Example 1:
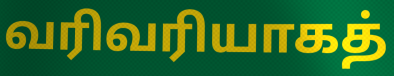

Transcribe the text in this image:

வரிவரியாகத்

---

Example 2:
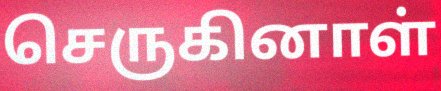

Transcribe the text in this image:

செருகினாள்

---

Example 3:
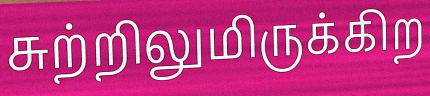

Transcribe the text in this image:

சுற்றிலுமிருக்கிற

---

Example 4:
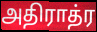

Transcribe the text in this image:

அதிராத்ர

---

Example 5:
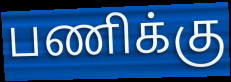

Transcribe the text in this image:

பணிக்கு